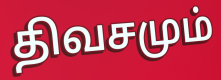
திவசமும்